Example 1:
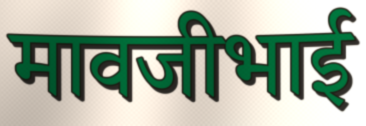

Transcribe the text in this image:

मावजीभाई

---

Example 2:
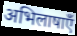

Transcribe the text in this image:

अभिलाषाएँ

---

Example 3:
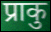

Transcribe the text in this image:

प्राकु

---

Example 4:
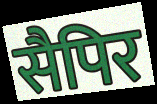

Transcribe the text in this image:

सैपिर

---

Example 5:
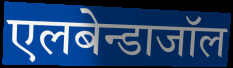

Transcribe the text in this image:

एलबेन्डाजॉल